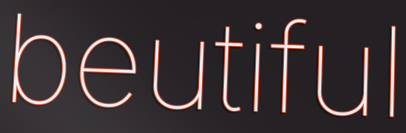
beutiful